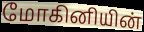
மோகினியின்